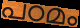
പഠമം